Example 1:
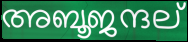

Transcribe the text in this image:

അബൂജന്ദല്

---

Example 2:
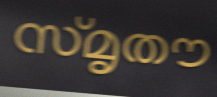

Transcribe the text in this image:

സ്മൃതൗ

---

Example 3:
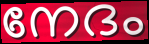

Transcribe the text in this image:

നേദം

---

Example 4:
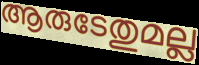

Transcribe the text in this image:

ആരുടേതുമല്ല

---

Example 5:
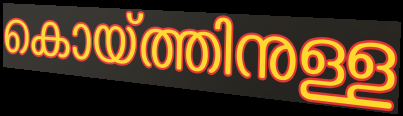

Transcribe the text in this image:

കൊയ്ത്തിനുള്ള